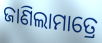
ଜାଣିଲାମାତ୍ରେ